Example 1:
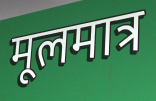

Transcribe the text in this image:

मूलमात्र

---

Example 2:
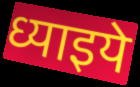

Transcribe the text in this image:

ध्याइये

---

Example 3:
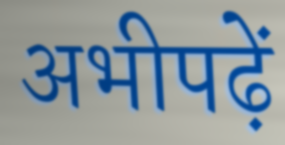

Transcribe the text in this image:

अभीपढ़ें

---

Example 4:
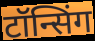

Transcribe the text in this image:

टॉन्सिंग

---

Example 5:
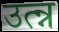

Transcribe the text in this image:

उत्न्न